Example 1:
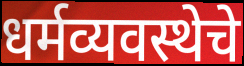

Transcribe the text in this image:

धर्मव्यवस्थेचे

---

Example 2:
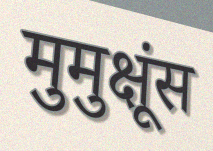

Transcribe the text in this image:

मुमुक्षूंस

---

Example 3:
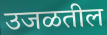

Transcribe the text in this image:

उजळतील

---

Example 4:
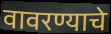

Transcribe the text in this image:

वावरण्याचे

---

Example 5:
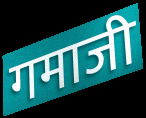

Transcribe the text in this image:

गमाजी